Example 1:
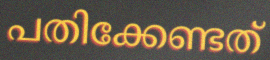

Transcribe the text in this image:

പതിക്കേണ്ടത്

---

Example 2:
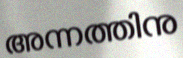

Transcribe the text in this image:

അന്നത്തിനു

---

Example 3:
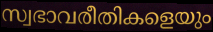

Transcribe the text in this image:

സ്വഭാവരീതികളെയും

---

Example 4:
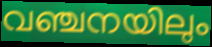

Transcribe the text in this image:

വഞ്ചനയിലും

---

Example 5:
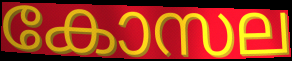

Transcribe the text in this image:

കോസല